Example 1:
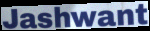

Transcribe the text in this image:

Jashwant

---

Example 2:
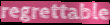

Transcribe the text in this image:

regrettable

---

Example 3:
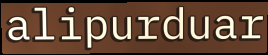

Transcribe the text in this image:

alipurduar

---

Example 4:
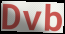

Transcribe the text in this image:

Dvb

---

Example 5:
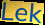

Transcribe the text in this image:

Lek